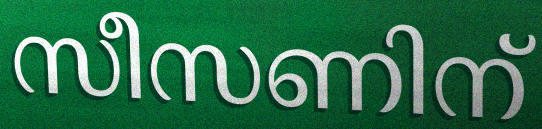
സീസണിന്